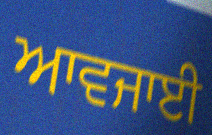
ਆਵਜਾਈ